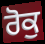
ਰੋਕੁ